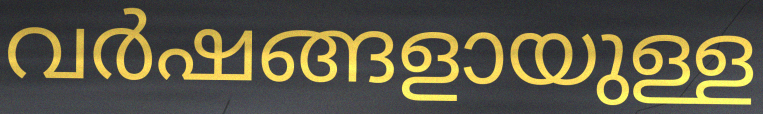
വർഷങ്ങളായുള്ള